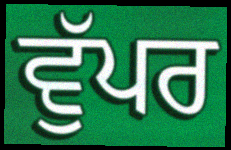
ਵੁੱਪਰ